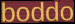
boddo